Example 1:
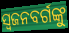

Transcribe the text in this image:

ସ୍ୱଜନବର୍ଗଙ୍କୁ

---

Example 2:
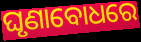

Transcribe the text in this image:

ଘୃଣାବୋଧରେ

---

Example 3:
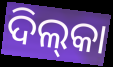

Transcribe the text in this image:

ଦିଲ୍‌କା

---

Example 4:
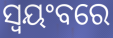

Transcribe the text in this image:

ସ୍ଵୟଂବରେ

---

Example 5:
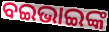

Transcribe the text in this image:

ବଇଭାଇଙ୍କ